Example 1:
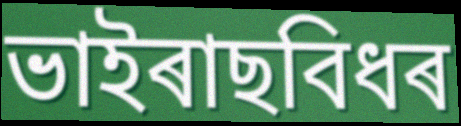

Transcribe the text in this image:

ভাইৰাছবিধৰ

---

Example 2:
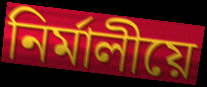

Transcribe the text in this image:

নিৰ্মালীয়ে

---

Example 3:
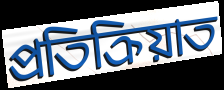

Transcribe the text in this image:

প্ৰতিক্ৰিয়াত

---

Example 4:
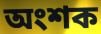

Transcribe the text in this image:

অংশক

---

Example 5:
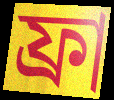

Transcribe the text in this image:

ফ্ৰা